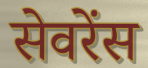
सेवरेंस